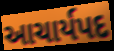
આચાર્યપદ